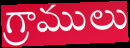
గ్రాములు